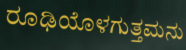
ರೂಢಿಯೊಳಗುತ್ತಮನು